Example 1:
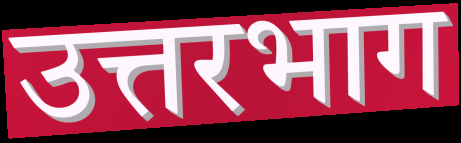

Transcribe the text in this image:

उत्तरभाग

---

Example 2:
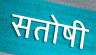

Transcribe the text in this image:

सतोषी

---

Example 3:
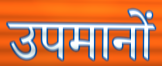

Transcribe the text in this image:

उपमानों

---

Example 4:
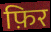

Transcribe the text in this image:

फ़िर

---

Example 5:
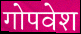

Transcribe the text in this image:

गोपवेश